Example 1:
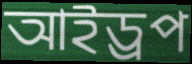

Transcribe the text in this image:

আইড্রপ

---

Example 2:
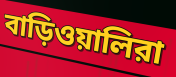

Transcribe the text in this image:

বাড়িওয়ালিরা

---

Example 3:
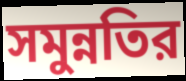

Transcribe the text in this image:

সমুন্নতির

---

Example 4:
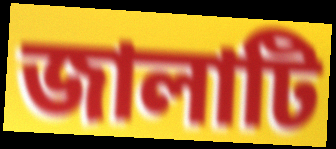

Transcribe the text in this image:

জালাটি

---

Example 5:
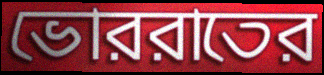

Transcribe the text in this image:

ভোররাতের